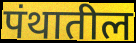
पंथातील